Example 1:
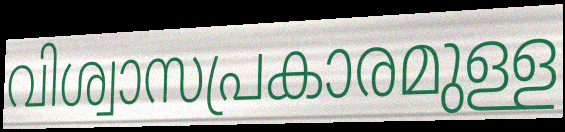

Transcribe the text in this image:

വിശ്വാസപ്രകാരമുള്ള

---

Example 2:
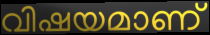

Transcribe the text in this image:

വിഷയമാണ്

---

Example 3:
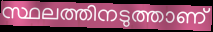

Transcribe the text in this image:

സ്ഥലത്തിനടുത്താണ്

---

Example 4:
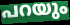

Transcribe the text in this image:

പറയും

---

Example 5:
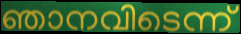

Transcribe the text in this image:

ഞാനവിടെന്ന്